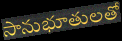
సానుభూతులతో